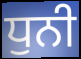
ਧੁਨੀ